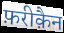
फ़रीक़ैन